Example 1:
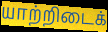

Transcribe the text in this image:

யாற்றிடைக்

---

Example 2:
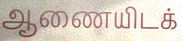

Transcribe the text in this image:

ஆணையிடக்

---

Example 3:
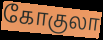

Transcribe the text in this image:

கோகுலா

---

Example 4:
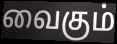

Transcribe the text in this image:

வைகும்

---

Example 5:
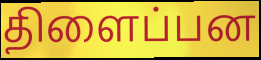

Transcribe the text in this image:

திளைப்பன